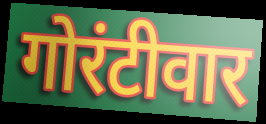
गोरंटीवार